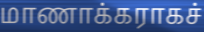
மாணாக்கராகச்